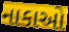
નાકાઓ